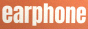
earphone